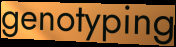
genotyping